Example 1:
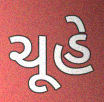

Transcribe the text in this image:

ચૂહે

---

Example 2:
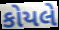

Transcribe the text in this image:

કોયલે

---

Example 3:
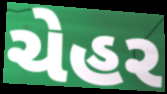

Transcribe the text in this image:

ચેહર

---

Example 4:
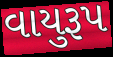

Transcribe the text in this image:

વાયુરૂપ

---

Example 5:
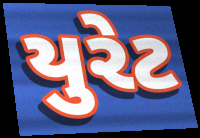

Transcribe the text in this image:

યુરેટ